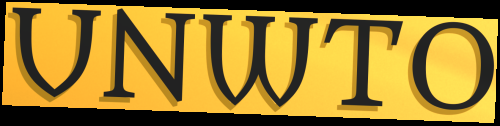
UNWTO